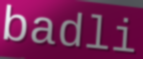
badli